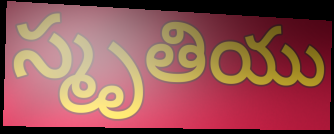
స్మృతియు